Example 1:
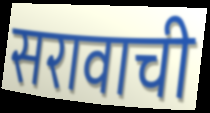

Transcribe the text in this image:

सरावाची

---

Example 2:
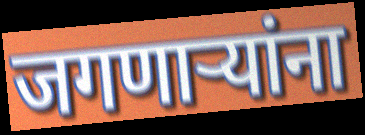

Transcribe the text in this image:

जगणाऱ्यांना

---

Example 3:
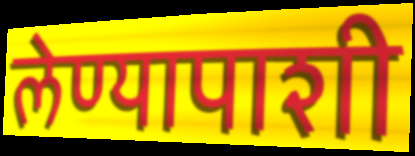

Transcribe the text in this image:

लेण्यापाशी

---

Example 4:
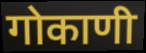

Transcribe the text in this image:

गोकाणी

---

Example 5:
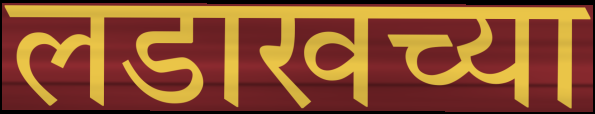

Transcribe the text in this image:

लडाखच्या